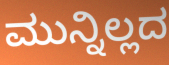
ಮುನ್ನಿಲ್ಲದ